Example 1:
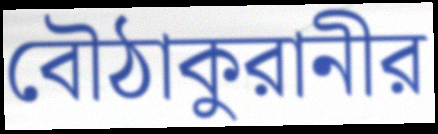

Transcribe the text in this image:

বৌঠাকুরানীর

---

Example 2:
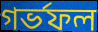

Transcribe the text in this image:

গর্ভফল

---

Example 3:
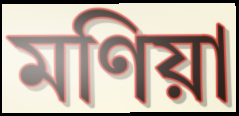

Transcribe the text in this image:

মণিয়া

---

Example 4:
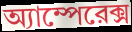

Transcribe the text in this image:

অ্যাম্পেরেক্স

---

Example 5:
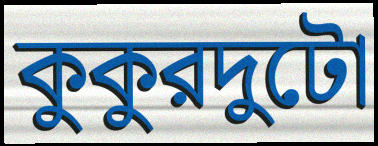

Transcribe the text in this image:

কুকুরদুটো